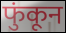
फुंकून